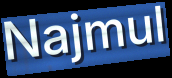
Najmul